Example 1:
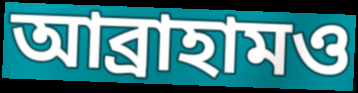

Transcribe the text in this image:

আব্রাহামও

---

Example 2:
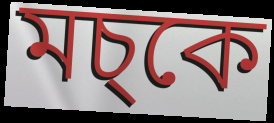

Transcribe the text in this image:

মচ্কে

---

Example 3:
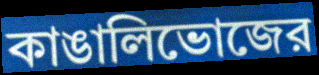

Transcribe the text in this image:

কাঙালিভোজের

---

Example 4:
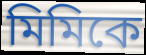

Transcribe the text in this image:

মিমিকে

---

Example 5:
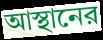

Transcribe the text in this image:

আস্থানের